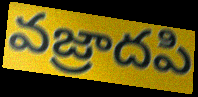
వజ్రాదపి